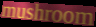
mushroom